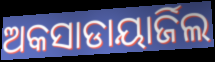
ଅକସାଡାୟାର୍ଜିଲ